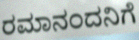
ರಮಾನಂದನಿಗೆ